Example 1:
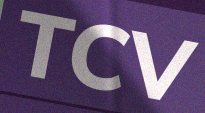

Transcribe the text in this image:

TCV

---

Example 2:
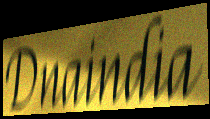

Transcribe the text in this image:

Dnaindia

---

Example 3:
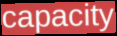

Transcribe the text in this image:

capacity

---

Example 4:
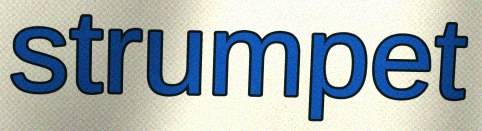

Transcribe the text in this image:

strumpet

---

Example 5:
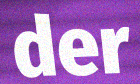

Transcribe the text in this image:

der